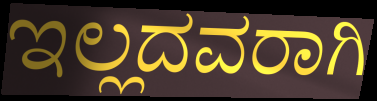
ಇಲ್ಲದವರಾಗಿ